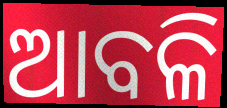
ଆବଳି